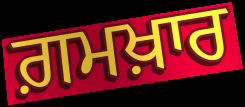
ਗ਼ਮਖ਼ਾਰ